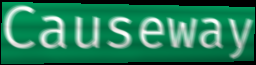
Causeway